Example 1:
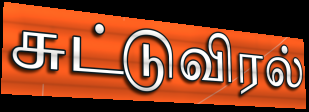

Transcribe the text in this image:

சுட்டுவிரல்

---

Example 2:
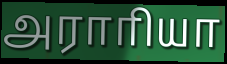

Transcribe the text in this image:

அராரியா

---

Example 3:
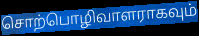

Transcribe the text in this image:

சொற்பொழிவாளராகவும்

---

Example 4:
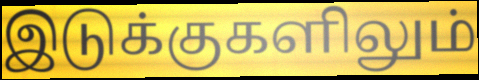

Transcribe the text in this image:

இடுக்குகளிலும்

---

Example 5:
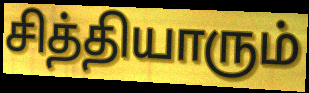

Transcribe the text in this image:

சித்தியாரும்